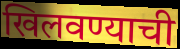
खिलवण्याची